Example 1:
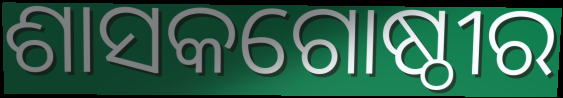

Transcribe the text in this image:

ଶାସକଗୋଷ୍ଠୀର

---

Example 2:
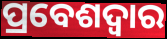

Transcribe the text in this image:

ପ୍ରବେଶଦ୍ଵାର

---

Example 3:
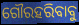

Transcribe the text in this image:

ଗୌରହରିବାବୁ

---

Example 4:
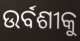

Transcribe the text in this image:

ଉର୍ବଶୀକୁ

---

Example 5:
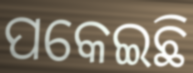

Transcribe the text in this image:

ପକେଇଛି